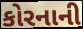
કોરનાની